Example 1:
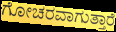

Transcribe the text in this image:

ಗೋಚರವಾಗುತ್ತಾರೆ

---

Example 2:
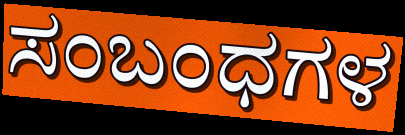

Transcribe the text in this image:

ಸಂಬಂಧಗಳ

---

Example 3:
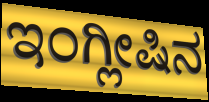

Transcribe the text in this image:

ಇಂಗ್ಲೀಷಿನ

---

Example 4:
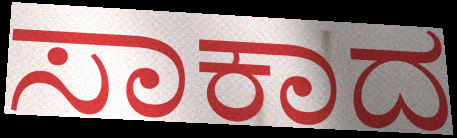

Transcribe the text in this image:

ಸಾಕಾದ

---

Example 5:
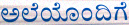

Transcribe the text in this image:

ಅಲೆಯೊಂದಿಗೆ